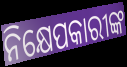
ନିକ୍ଷେପକାରୀଙ୍କ